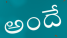
అందే